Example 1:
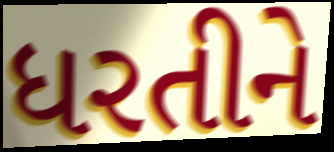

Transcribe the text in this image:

ધરતીને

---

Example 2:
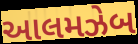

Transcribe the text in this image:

આલમઝેબ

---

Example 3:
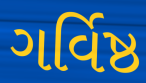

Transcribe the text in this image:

ગર્વિષ્ઠ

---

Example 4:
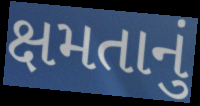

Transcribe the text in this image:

ક્ષમતાનું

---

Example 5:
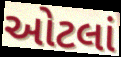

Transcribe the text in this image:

ઓટલાં